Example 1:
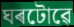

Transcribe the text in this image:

ঘৰটোৱে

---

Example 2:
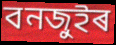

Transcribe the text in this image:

বনজুইৰ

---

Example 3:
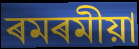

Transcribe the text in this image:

ৰমৰমীয়া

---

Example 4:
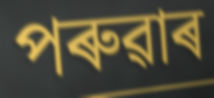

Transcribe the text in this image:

পৰুৱাৰ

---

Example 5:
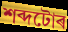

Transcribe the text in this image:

শব্দটোৰ